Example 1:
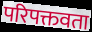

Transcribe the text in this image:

परिपक्तवता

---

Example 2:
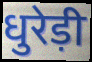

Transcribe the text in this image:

धुरेड़ी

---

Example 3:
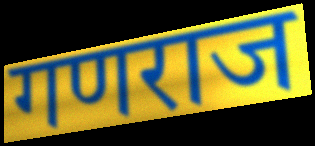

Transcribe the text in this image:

गणराज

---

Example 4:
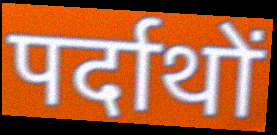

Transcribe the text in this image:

पर्दाथों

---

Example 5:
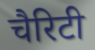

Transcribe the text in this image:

चैरिटी